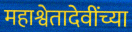
महाश्वेतादेवींच्या